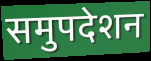
समुपदेशन